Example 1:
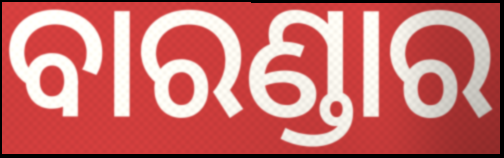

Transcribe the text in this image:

ବାରଣ୍ଡାର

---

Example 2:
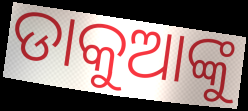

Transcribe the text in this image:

ଡାକୁଆଙ୍କୁ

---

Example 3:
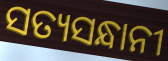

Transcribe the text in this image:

ସତ୍ୟସନ୍ଧାନୀ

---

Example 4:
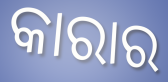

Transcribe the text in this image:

କାରାର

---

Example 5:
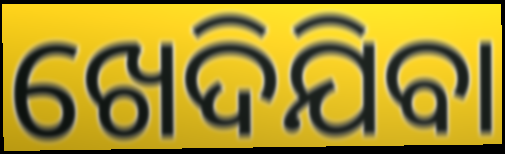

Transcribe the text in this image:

ଖେଦିଯିବା